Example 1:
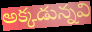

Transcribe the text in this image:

అక్కడున్నవి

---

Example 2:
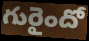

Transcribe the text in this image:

గురైందో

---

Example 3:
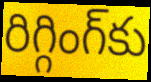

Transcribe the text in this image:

రిగ్గింగ్‌కు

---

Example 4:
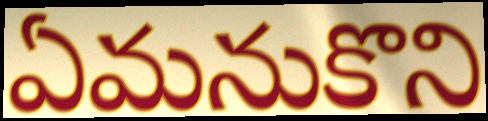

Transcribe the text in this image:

ఏమనుకొని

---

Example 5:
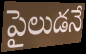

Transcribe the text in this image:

పైలుడనే